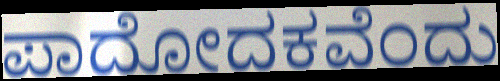
ಪಾದೋದಕವೆಂದು